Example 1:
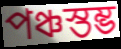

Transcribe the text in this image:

পঞ্চস্তম্ভ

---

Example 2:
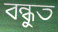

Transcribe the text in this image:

বন্ধুত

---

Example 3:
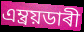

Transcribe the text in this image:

এম্ব্ৰয়ডাৰী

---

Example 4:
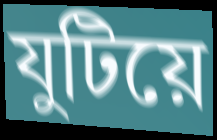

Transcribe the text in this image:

যুটিয়ে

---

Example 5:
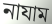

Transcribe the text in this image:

নাযাম